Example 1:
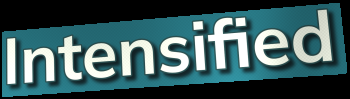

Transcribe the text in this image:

Intensified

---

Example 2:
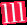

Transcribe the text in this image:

lll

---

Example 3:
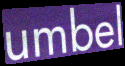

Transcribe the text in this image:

umbel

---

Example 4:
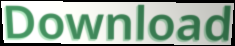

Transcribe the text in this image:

Download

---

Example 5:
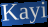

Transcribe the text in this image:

Kayi